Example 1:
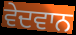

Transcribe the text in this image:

ਵੇਦਵਾਨ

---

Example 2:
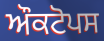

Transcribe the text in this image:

ਔਕਟੋਪਸ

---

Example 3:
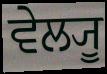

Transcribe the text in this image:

ਵੇਲ੍ਯੂ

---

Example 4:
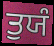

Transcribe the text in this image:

ਤੁਯੰ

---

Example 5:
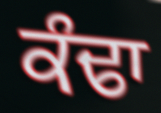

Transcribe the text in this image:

ਕੰਢਾ